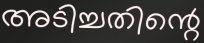
അടിച്ചതിന്റെ